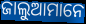
ଜାଲୁଆମାନେ